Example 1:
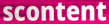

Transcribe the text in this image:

scontent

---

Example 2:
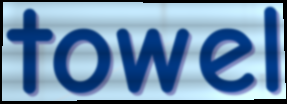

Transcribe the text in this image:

towel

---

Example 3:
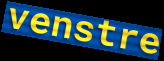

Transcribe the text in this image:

venstre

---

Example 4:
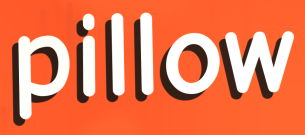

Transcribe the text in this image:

pillow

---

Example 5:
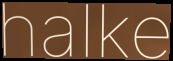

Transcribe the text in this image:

halke